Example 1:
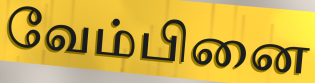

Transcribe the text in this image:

வேம்பினை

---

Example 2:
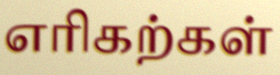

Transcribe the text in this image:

எரிகற்கள்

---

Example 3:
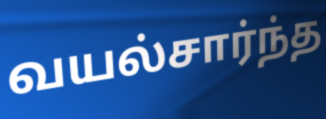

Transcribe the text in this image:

வயல்சார்ந்த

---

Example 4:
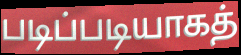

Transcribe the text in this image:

படிப்படியாகத்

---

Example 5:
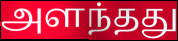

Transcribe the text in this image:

அளந்தது